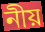
নীয়